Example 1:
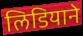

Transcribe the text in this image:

लिडियाने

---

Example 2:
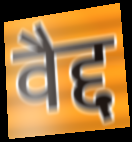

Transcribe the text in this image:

वैद्द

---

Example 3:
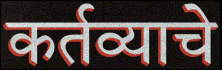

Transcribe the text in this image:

कर्तव्याचे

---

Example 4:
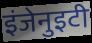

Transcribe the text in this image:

इंजेनुइटी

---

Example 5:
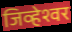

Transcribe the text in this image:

जिव्हेश्वर